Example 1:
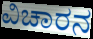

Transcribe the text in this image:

ವಿಚಾರನ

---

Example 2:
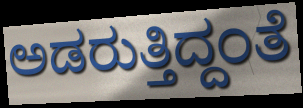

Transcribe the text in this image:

ಅಡರುತ್ತಿದ್ದಂತೆ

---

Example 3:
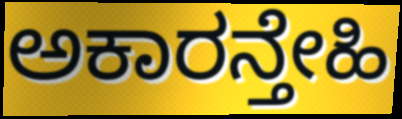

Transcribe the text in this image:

ಅಕಾರನ್ತೇಹಿ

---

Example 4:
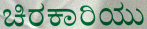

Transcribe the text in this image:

ಚಿರಕಾರಿಯು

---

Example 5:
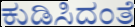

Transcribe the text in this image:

ಕುಡಿಸಿದಂತೆ